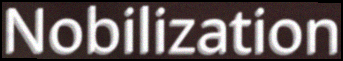
Nobilization